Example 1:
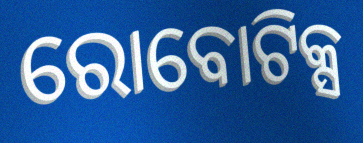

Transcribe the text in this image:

ରୋବୋଟିକ୍ସ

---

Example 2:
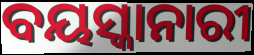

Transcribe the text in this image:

ବୟସ୍କାନାରୀ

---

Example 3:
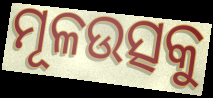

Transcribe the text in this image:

ମୂଳଉତ୍ସକୁ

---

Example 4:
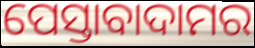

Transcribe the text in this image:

ପେସ୍ତାବାଦାମର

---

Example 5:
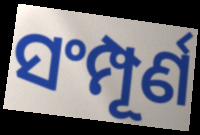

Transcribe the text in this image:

ସଂମ୍ପୂର୍ଣ